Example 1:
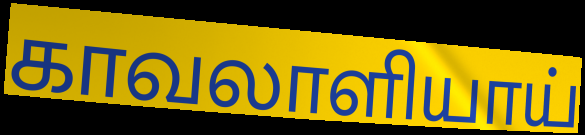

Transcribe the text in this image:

காவலாளியாய்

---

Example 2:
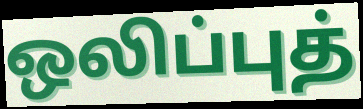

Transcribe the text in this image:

ஒலிப்புத்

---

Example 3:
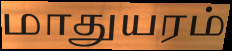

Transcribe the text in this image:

மாதுயரம்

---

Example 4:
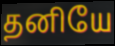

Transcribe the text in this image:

தனியே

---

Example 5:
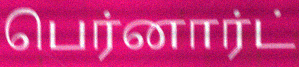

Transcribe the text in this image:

பெர்னார்ட்